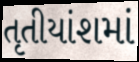
તૃતીયાંશમાં